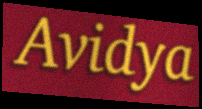
Avidya